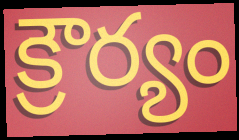
క్రౌర్యం